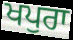
ਖਪੁਰਾ